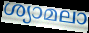
ശ്യാമലാ